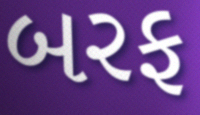
બરફ